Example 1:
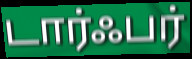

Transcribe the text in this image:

டார்ஃபர்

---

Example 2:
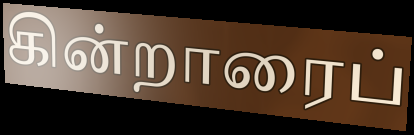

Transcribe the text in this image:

கின்றாரைப்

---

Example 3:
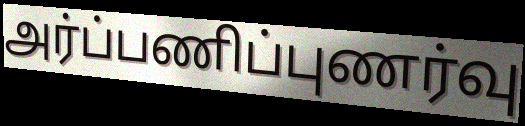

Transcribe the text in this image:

அர்ப்பணிப்புணர்வு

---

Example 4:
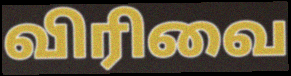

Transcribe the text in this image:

விரிவை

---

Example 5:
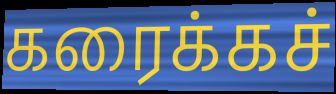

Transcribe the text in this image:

கரைக்கச்